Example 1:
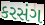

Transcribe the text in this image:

કરસંગ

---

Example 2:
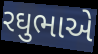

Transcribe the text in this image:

રઘુભાએ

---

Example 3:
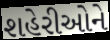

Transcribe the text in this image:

શહેરીઓને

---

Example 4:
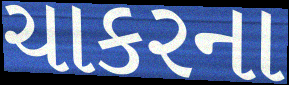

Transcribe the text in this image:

ચાકરના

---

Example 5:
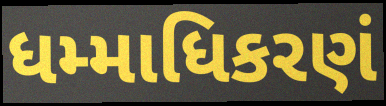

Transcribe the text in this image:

ધમ્માધિકરણં